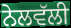
ਨੇਲਵੱਲੀ